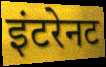
इंटरेनट